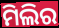
ମିଲିର